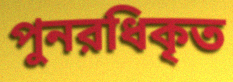
পুনরধিকৃত